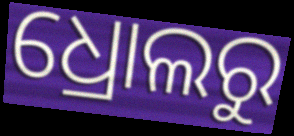
ଧ୍ରୋଲରୁ